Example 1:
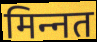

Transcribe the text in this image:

मिन्नत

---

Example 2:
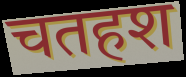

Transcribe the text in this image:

चतहश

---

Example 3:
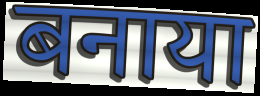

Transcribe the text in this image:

बनाया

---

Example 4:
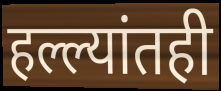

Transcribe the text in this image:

हल्ल्यांतही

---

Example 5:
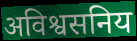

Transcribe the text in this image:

अविश्वसनिय